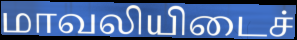
மாவலியிடைச்